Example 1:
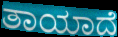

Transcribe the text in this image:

ತಾಯಾದೆ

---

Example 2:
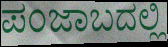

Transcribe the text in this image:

ಪಂಜಾಬದಲ್ಲಿ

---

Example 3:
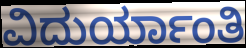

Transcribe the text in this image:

ವಿದುರ್ಯಾಂತಿ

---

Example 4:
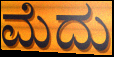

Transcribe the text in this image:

ಮೆದು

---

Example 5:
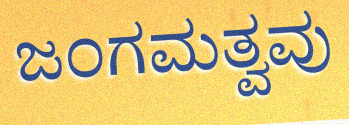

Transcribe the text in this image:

ಜಂಗಮತ್ವವು